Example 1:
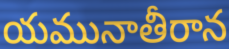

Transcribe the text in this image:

యమునాతీరాన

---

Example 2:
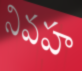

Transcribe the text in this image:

నివహ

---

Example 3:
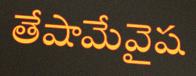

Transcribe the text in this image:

తేషామేవైష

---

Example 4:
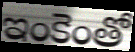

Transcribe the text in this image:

ఇంకెంతో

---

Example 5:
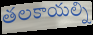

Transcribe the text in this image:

తలకాయల్ని